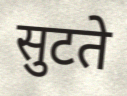
सुटते